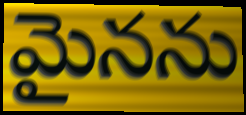
మైనను